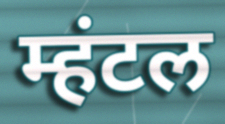
म्हंटल